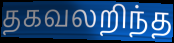
தகவலறிந்த